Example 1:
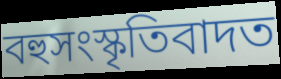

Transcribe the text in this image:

বহুসংস্কৃতিবাদত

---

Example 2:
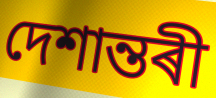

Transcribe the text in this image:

দেশান্তৰী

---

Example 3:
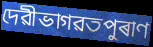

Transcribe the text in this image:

দেৱীভাগৱতপুৰাণ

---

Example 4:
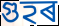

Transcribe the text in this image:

গুহৰ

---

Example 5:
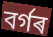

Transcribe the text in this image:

বৰ্গৰ